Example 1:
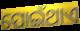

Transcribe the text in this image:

ପୋଇଁଥାଏ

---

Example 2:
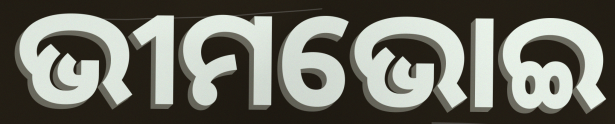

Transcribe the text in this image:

ଭୀମଭୋଇ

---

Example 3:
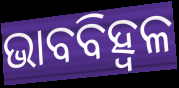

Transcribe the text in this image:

ଭାବବିହ୍ବଳ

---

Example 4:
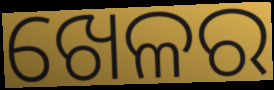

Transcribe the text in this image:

ଖେଳର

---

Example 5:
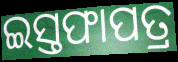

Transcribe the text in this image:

ଇସ୍ତଫାପତ୍ର